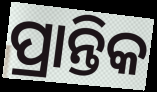
ପ୍ରାନ୍ତିକ